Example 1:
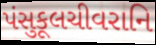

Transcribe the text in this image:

પંસુકૂલચીવરાનિ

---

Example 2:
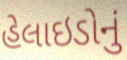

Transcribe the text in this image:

હેલાઇડોનું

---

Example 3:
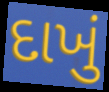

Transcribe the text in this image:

દાખું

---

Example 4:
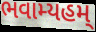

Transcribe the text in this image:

ભવામ્યહમ્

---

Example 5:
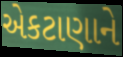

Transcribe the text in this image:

એકટાણાને